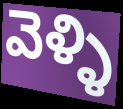
వెళ్ళి